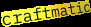
craftmatic